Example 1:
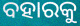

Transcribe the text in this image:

ବହାରକୁ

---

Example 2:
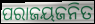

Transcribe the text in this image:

ପରାଜୟଜନିତ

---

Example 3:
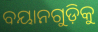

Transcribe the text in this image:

ବୟାନଗୁଡ଼ିକୁ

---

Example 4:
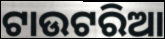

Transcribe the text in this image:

ଟାଉଟରିଆ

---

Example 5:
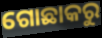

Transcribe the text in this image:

ଗୋଛାକରୁ